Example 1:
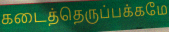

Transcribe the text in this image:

கடைத்தெருப்பக்கமே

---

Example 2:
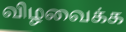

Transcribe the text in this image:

விழவைக்க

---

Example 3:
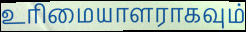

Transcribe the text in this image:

உரிமையாளராகவும்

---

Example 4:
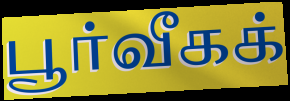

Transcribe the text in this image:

பூர்வீகக்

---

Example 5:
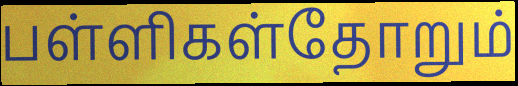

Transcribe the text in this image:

பள்ளிகள்தோறும்